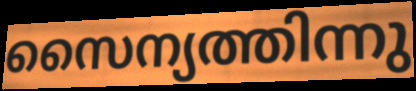
സൈന്യത്തിന്നു